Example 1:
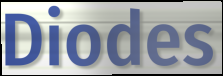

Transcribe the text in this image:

Diodes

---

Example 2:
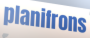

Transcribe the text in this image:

planifrons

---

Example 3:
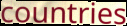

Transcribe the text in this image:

countries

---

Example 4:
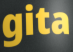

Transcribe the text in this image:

gita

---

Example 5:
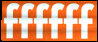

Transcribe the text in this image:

ffffff